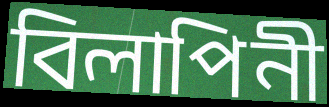
বিলাপিনী